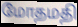
மோதமதி